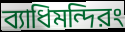
ব্যাধিমন্দিরং